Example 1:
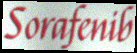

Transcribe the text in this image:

Sorafenib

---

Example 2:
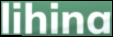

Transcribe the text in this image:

lihina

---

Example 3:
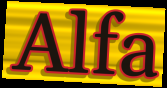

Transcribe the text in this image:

Alfa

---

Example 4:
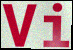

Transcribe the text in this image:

Vi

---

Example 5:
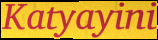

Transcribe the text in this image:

Katyayini